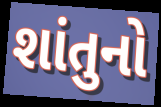
શાંતુનો